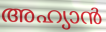
അഹ്യാൻ